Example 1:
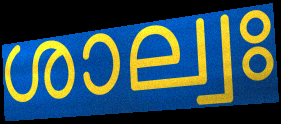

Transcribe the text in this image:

ശാല്വഃ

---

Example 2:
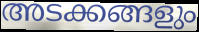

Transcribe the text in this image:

അടക്കങ്ങളും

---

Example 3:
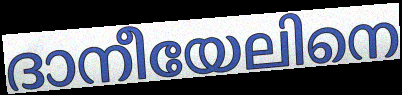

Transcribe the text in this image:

ദാനീയേലിനെ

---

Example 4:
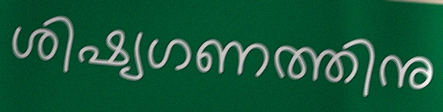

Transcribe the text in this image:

ശിഷ്യഗണത്തിനു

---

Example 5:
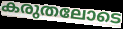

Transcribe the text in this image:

കരുതലോടെ